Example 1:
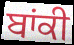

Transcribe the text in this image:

ਬਾਂਕੀ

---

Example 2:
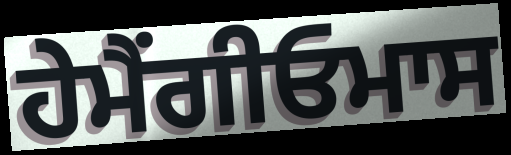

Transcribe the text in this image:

ਹੇਮੈਂਗੀਓਮਾਸ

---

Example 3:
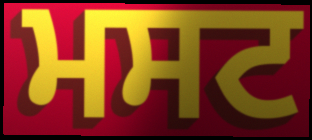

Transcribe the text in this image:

ਮਸਟ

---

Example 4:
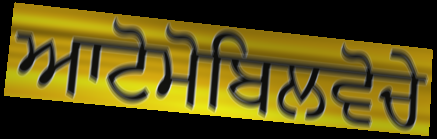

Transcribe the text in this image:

ਆਟੋਮੋਬਿਲਵੋਚੇ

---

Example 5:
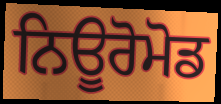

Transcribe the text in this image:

ਨਿਊਰੋਮੋਡ